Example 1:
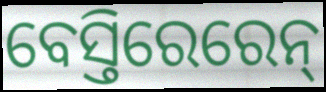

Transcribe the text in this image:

ବେସ୍ତିରେରେନ୍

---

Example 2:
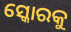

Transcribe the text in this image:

ସ୍କୋରକୁ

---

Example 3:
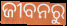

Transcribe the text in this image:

ଜୀବନରୁ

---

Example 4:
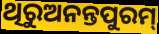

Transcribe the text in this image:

ଥିରୁଅନନ୍ତପୁରମ୍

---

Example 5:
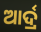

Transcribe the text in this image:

ଆର୍ଦ୍ର